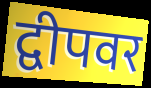
द्वीपवर